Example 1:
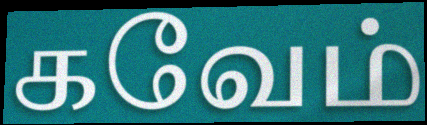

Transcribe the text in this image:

கவேம்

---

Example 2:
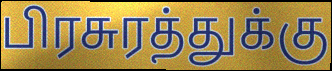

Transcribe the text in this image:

பிரசுரத்துக்கு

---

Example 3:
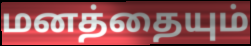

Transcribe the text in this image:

மனத்தையும்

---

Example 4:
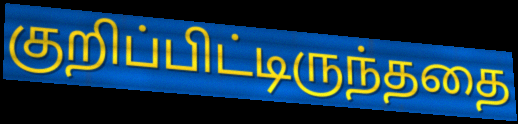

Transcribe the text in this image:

குறிப்பிட்டிருந்ததை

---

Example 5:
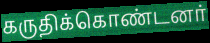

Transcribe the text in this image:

கருதிக்கொண்டனர்